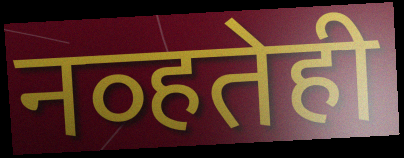
नव्हतेही